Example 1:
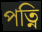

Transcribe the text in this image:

পত্নি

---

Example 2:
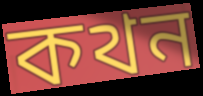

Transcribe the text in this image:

কথন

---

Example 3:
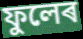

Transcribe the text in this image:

ফুলেৰ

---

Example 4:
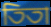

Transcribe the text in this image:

তিতা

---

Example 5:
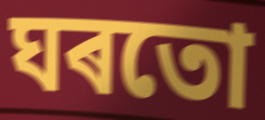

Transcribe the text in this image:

ঘৰতো